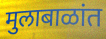
मुलाबाळांत